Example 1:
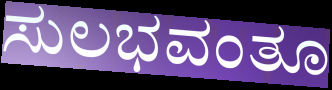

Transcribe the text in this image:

ಸುಲಭವಂತೂ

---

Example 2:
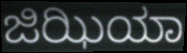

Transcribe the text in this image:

ಜಿಝಿಯಾ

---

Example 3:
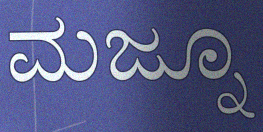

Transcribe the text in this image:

ಮಜ್ನೂ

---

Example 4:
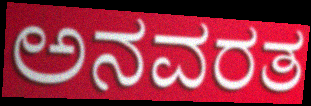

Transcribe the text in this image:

ಅನವರತ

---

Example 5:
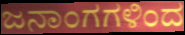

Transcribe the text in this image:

ಜನಾಂಗಗಳಿಂದ